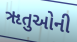
ૠતુઓની